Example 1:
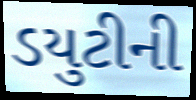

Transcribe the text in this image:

ડયુટીની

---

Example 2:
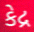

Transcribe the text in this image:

કેદ્ર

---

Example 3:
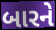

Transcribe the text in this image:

બારને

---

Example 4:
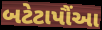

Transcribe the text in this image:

બટેટાપૌંઆ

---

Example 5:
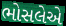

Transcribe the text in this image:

ભોસલેએ